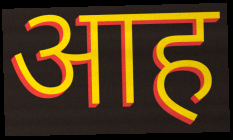
आह